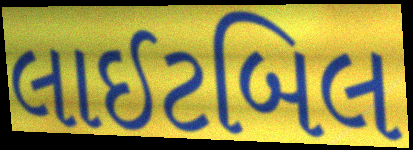
લાઈટબિલ